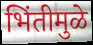
भिंतीमुळे